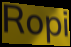
Ropi